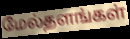
மேல்தளங்கள்